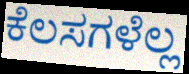
ಕೆಲಸಗಳೆಲ್ಲ